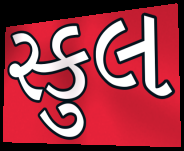
સ્કુલ